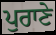
ਪੁਰਾਣੇ